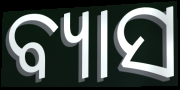
ବ୍ୟାସ